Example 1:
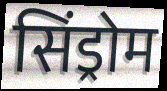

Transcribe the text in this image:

सिंड्रोम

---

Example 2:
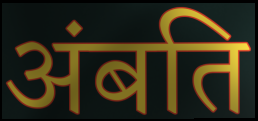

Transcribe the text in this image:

अंबति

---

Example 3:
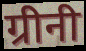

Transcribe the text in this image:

ग्रीनी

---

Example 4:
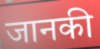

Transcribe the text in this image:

जानकी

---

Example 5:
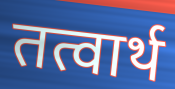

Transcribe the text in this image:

तत्वार्थ